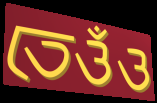
তেওঁও